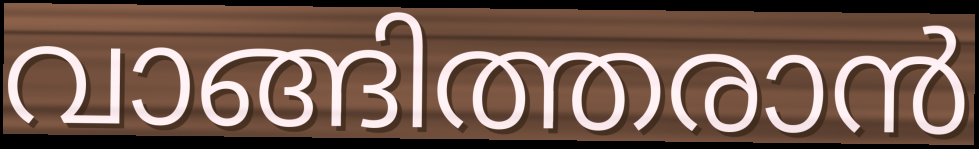
വാങ്ങിത്തരാൻ